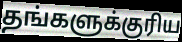
தங்களுக்குரிய